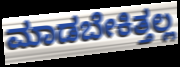
ಮಾಡಬೇಕಿತ್ತಲ್ಲ